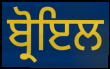
ਬ੍ਰੋਇਲ